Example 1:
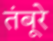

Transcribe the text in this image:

तंबूरे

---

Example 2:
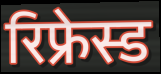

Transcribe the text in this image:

रिफ्रेस्ड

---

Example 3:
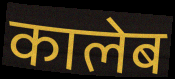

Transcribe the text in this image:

कालेब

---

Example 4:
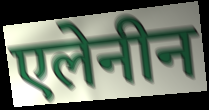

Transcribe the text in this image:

एलेनीन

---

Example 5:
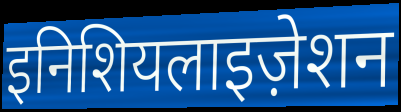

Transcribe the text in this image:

इनिशियलाइज़ेशन